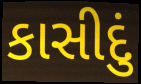
કાસીદું